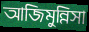
আজিমুন্নিসা